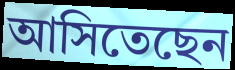
আসিতেছেন